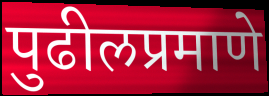
पुढीलप्रमाणे